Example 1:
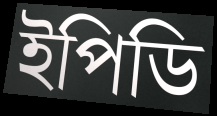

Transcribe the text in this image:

ইপিডি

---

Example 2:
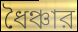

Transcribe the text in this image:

ধৈঞ্চার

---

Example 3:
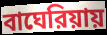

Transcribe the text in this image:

বাঘেরিয়ায়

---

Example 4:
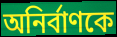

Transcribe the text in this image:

অনির্বাণকে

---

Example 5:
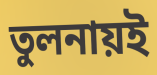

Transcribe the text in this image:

তুলনায়ই